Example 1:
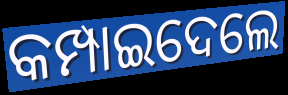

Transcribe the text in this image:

କମ୍ପାଇଦେଲେ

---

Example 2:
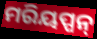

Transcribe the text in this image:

ମରିୟପ୍ପନ୍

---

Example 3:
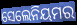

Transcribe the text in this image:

ସେଲେନିୟମର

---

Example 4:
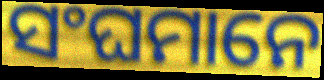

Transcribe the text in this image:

ସଂଘମାନେ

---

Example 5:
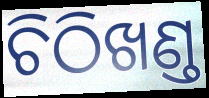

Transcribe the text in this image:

ଚିଠିଖଣ୍ଡ